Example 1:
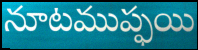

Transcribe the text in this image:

నూటముప్ఫయి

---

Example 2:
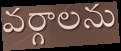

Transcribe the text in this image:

వర్గాలను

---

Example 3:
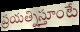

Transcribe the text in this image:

ప్రయత్నిస్తూంటే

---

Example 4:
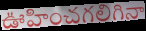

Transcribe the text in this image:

ఊహించగలిగినా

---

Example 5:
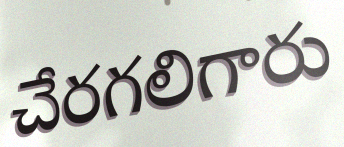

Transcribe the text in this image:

చేరగలిగారు